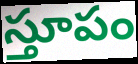
స్తూపం